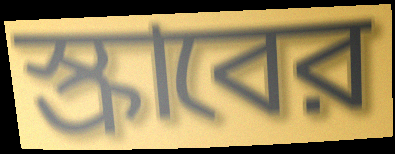
স্ক্রাবের